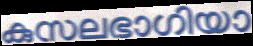
കുസലഭാഗിയാ